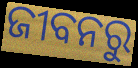
ଜୀବନରୁ